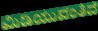
ಮಿಡಿಯುವಂತಿದೆ